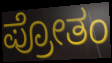
ಪ್ರೋತಂ